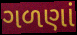
ગળણાં